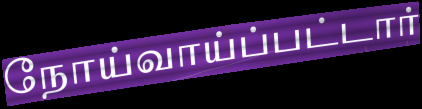
நோய்வாய்ப்பட்டார்